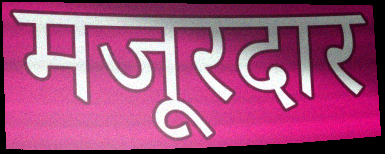
मजूरदार